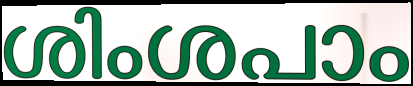
ശിംശപാം